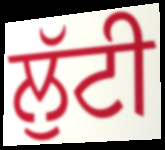
ਲੁੱਟੀ